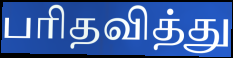
பரிதவித்து